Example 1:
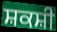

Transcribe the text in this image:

ਸ਼ਕਸ਼ੀ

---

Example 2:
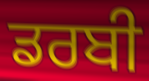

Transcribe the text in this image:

ਡਰਬੀ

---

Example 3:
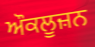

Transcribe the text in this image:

ਔਕਲੂਜ਼ਨ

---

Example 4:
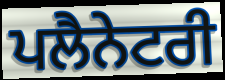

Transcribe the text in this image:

ਪਲੈਨੇਟਰੀ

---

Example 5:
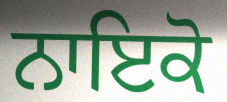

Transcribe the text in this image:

ਨਾਇਕੋ